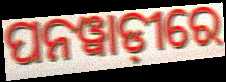
ପନୱାଡ଼ୀରେ